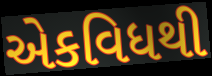
એકવિધથી